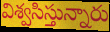
విశ్వసిస్తున్నారు